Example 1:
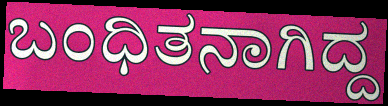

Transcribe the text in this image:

ಬಂಧಿತನಾಗಿದ್ದ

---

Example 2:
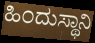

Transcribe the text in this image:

ಹಿಂದುಸ್ಥಾನಿ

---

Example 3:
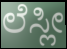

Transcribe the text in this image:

ಲೆಸ್ಲೀ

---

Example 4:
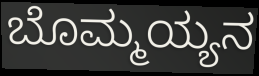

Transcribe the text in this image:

ಬೊಮ್ಮಯ್ಯನ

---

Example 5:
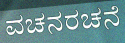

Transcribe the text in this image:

ವಚನರಚನೆ